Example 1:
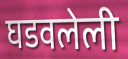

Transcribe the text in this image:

घडवलेली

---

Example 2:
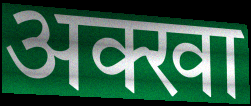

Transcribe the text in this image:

अक्खा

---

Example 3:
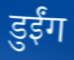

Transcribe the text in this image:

डुईंग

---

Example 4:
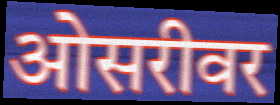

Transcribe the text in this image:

ओसरीवर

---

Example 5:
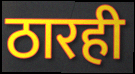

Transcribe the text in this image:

ठारही